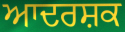
ਆਦਰਸ਼ਕ